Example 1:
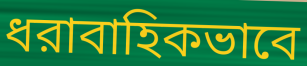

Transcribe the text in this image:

ধরাবাহিকভাবে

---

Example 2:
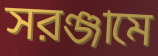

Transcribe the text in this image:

সরঞ্জামে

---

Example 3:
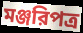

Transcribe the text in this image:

মঞ্জরিপত্র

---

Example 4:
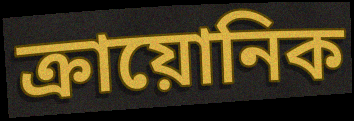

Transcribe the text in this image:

ক্রায়োনিক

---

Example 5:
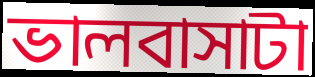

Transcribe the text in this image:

ভালবাসাটা